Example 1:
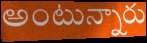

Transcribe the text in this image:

అంటున్నారు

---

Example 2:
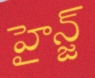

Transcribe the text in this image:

హైన్జ్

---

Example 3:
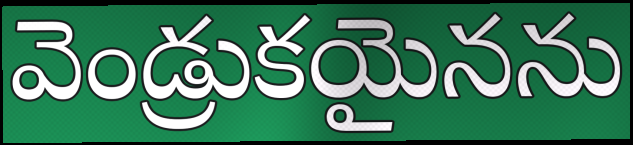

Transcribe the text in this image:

వెండ్రుకయైనను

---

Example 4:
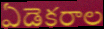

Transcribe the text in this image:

ఏడెకరాల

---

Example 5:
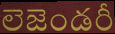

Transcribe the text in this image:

లెజెండరీ